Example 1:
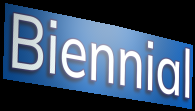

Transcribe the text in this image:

Biennial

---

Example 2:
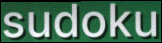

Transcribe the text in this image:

sudoku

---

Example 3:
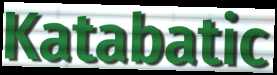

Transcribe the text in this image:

Katabatic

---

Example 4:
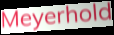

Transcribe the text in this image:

Meyerhold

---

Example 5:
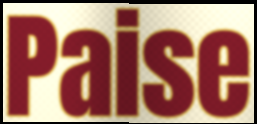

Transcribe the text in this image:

Paise